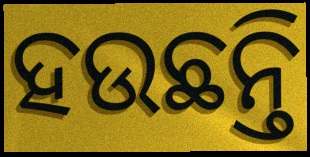
ହଉଛନ୍ତି